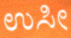
ಉಸೀ